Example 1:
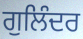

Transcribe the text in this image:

ਗੁਲਿੰਦਰ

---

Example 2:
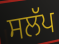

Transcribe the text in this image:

ਸਲੱਪ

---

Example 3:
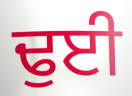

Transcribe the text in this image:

ਢੁਈ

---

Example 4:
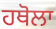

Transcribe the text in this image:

ਹਥੋਲਾ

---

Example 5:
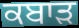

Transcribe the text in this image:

ਕਬਾੜ